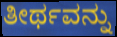
ತೀರ್ಥವನ್ನು